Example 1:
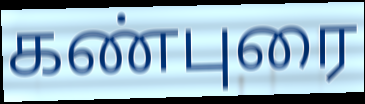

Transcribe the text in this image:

கண்புரை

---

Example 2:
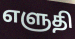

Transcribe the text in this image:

எளுதி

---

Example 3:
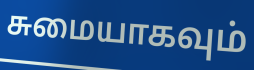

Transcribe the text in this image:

சுமையாகவும்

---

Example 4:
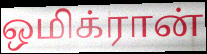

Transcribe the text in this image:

ஒமிக்ரான்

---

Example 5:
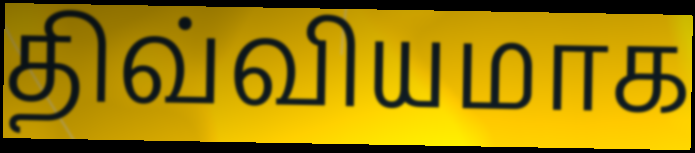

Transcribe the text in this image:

திவ்வியமாக